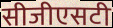
सीजीएसटी